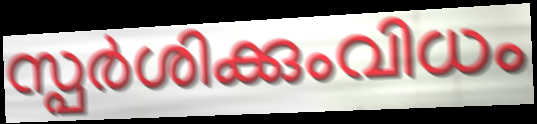
സ്പർശിക്കുംവിധം